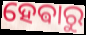
ହେଵାରୁ